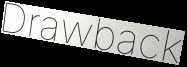
Drawback